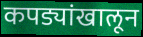
कपड्यांखालून